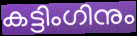
കട്ടിംഗിനും